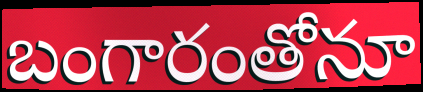
బంగారంతోనూ